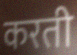
करती